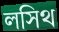
লসিথ